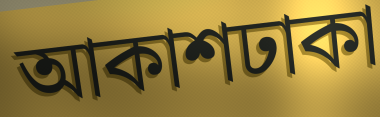
আকাশঢাকা